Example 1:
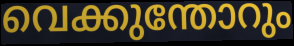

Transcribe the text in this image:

വെക്കുന്തോറും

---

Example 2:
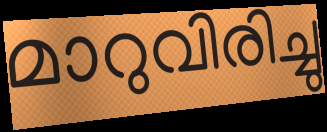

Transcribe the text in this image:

മാറുവിരിച്ചു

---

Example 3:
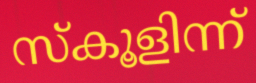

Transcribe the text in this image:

സ്കൂളിന്ന്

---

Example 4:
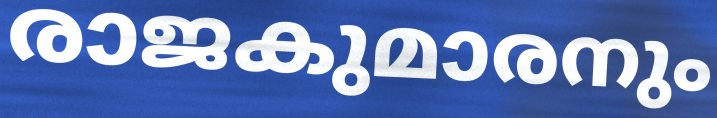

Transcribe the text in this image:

രാജകുമാരനും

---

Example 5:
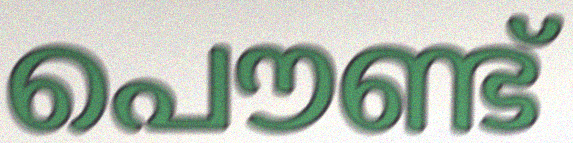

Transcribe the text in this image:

പൌണ്ട്